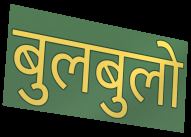
बुलबुलो